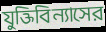
যুক্তিবিন্যাসের